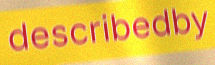
describedby